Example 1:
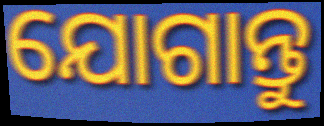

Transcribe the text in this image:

ଯୋଗାନ୍ତୁ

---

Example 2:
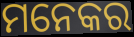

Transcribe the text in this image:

ମନେକର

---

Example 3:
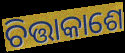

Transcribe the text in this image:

ଚିତ୍ତାକାଶେ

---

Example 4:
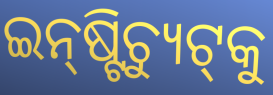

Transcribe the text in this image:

ଇନ୍‌ଷ୍ଟିଚ୍ୟୁଟ୍‌କୁ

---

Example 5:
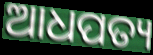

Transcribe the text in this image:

ଆଧପତ୍ୟ